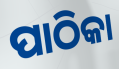
ପାଠିକା